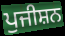
ਪੁਜੀਸ਼ਨ